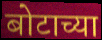
बोटाच्या